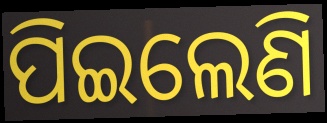
ପିଇଲେଣି